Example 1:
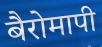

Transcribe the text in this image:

बैरोमापी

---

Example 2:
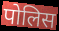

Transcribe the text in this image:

पोलिस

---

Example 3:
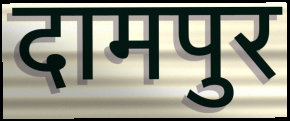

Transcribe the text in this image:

दामपुर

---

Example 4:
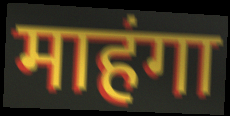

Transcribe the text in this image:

माहंगा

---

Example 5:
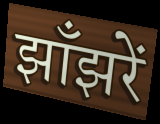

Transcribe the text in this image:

झाँझरें